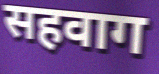
सहवाग